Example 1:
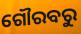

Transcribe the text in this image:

ଗୌରବରୁ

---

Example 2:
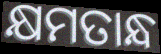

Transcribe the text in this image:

କ୍ଷମତାନ୍ଧ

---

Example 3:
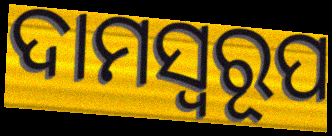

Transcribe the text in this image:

ଦାମସ୍ୱରୂପ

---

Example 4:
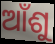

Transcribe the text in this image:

ଆଁଶୁ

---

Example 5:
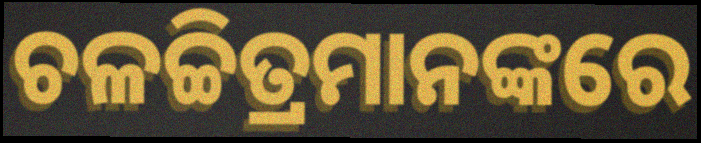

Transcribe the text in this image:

ଚଳଚ୍ଚିତ୍ରମାନଙ୍କରେ